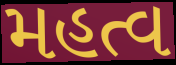
મહત્વ